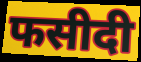
फसीदी